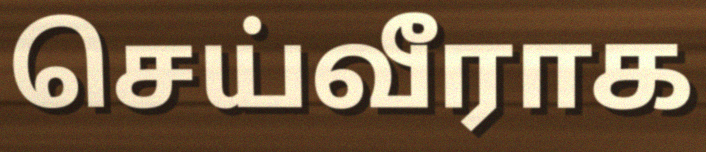
செய்வீராக